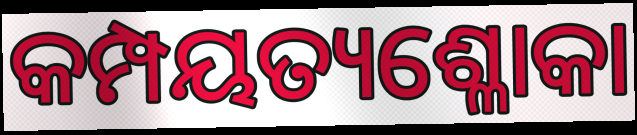
କମ୍ପୟତ୍ୟଶ୍ଳୋକା